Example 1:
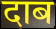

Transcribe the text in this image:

दाब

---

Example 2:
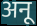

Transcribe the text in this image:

अनू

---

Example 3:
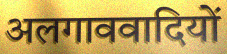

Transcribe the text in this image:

अलगाववादियों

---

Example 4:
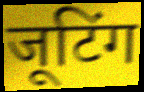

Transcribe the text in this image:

जूटिंग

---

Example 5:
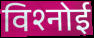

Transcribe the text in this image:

विश्नोई